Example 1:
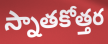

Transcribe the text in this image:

స్నాతకోత్తర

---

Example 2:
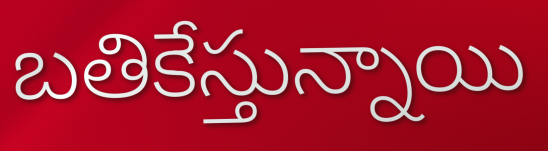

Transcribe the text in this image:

బతికేస్తున్నాయి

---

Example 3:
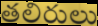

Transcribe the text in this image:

తలిరులు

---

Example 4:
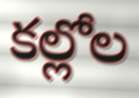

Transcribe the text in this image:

కల్లోల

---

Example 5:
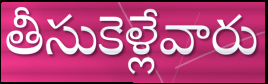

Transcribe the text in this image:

తీసుకెళ్లేవారు